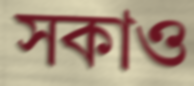
সকাও